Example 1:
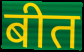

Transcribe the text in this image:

बीत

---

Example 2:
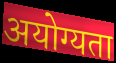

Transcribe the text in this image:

अयोग्यता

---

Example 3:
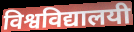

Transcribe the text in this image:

विश्वविद्यालयी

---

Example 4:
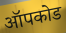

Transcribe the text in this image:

ऑपकोड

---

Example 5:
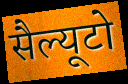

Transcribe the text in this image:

सैल्यूटो